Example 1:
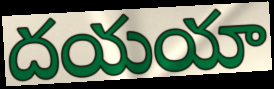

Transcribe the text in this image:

దయయా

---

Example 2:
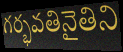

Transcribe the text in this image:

గర్భవతినైతిని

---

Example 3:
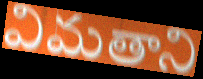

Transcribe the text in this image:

విమతాని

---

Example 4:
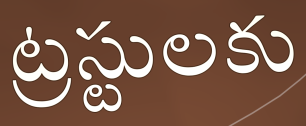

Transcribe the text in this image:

ట్రస్టులకు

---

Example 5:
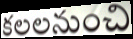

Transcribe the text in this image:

కలలనుంచి